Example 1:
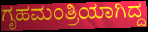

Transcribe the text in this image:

ಗೃಹಮಂತ್ರಿಯಾಗಿದ್ದ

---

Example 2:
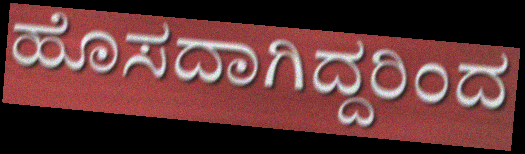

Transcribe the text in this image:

ಹೊಸದಾಗಿದ್ದರಿಂದ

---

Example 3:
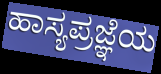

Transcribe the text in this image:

ಹಾಸ್ಯಪ್ರಜ್ಞೆಯ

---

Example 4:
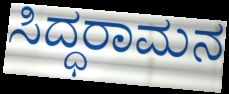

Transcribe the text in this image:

ಸಿದ್ಧರಾಮನ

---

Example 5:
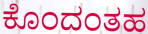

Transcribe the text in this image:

ಕೊಂದಂತಹ